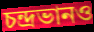
চন্দ্রভানও